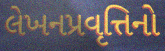
લેખનપ્રવૃત્તિનો